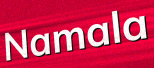
Namala